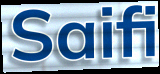
Saifi